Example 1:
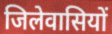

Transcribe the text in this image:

जिलेवासियों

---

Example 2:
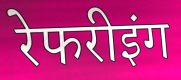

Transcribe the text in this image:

रेफरीइंग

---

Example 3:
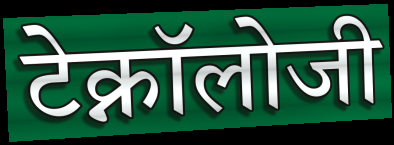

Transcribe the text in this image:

टेक्नॉलोजी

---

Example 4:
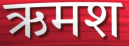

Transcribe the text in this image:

ऋमश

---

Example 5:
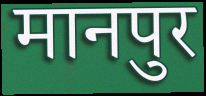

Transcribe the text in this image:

मानपुर